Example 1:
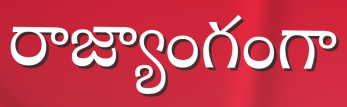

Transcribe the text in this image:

రాజ్యాంగంగా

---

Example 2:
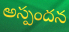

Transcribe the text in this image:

అస్పందన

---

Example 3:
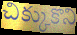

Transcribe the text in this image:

చిక్కుకొని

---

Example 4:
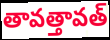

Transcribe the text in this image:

తావత్తావత్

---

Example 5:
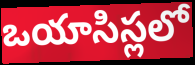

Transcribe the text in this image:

ఒయాసిస్లలో